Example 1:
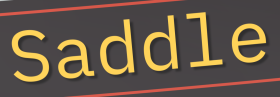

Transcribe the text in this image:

Saddle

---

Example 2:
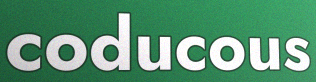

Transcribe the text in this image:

coducous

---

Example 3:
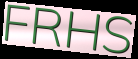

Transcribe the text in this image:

FRHS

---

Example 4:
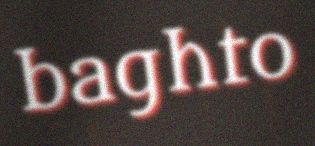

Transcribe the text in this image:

baghto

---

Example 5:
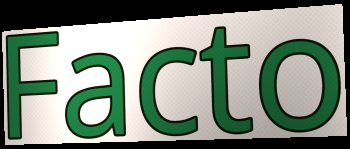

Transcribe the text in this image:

Facto